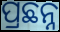
ପ୍ରଛନ୍ନ